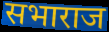
सभाराज